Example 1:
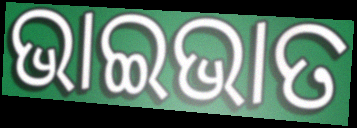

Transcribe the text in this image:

ଭାଇଭାତ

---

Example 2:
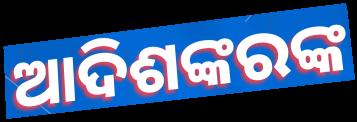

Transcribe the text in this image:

ଆଦିଶଙ୍କରଙ୍କ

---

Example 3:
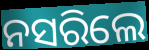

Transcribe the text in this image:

ନସରିଲେ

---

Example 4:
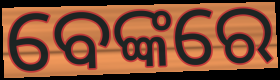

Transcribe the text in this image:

ବେଙ୍କରେ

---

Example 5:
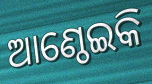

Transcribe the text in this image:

ଆଣ୍ଠେଇକି